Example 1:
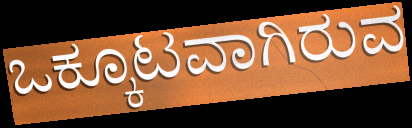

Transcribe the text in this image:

ಒಕ್ಕೂಟವಾಗಿರುವ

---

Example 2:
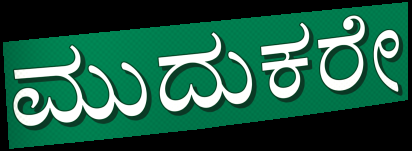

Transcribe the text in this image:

ಮುದುಕರೇ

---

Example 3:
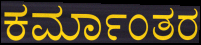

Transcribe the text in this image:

ಕರ್ಮಾಂತರ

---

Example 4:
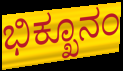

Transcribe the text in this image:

ಭಿಕ್ಖೂನಂ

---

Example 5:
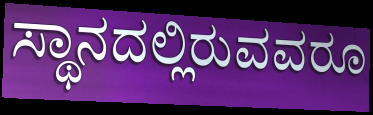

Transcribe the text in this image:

ಸ್ಥಾನದಲ್ಲಿರುವವರೂ